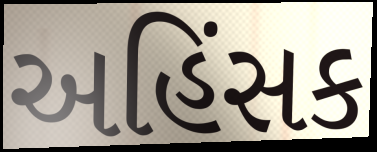
અહિંસક